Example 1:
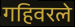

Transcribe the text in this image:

गहिवरले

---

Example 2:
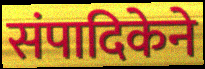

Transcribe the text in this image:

संपादिकेने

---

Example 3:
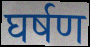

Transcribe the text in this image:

घर्षण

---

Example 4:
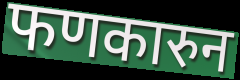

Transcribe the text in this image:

फणकारुन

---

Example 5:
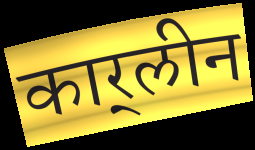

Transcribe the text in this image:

कार्लीन